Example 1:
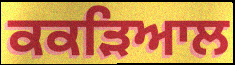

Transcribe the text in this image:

ਕਕੜਿਆਲ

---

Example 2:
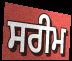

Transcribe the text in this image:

ਸਰੀਮ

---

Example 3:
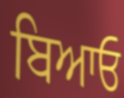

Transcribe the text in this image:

ਬਿਆਓ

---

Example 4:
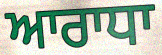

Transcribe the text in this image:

ਆਰਾਧਾ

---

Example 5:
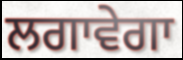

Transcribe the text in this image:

ਲਗਾਵੇਗਾ